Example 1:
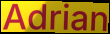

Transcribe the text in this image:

Adrian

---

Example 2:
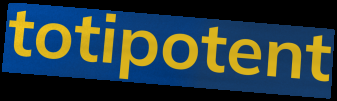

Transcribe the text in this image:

totipotent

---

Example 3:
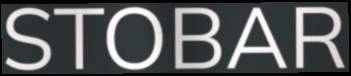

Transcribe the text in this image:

STOBAR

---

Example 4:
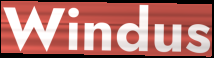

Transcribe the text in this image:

Windus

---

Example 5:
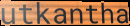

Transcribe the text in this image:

utkantha